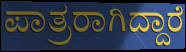
ಪಾತ್ರರಾಗಿದ್ದಾರೆ